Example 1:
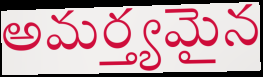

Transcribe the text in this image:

అమర్త్యమైన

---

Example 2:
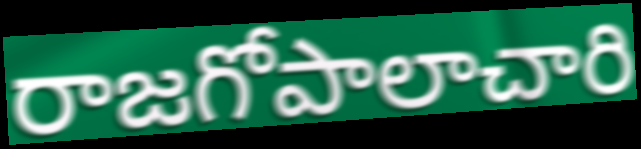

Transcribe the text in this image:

రాజగోపాలాచారి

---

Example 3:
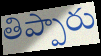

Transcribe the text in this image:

తిప్పారు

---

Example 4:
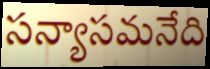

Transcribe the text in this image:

సన్యాసమనేది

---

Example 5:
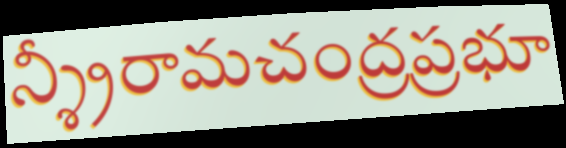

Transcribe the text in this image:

న్శ్రీరామచంద్రప్రభూ